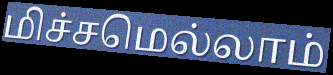
மிச்சமெல்லாம்